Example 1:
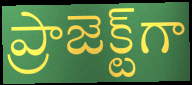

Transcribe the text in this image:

ప్రాజెక్ట్‌గా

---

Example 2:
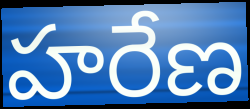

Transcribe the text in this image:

హరేణ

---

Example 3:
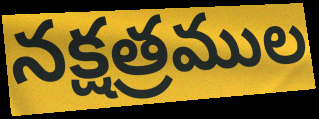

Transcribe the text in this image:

నక్షత్రముల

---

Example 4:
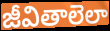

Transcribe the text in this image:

జీవితాలెలా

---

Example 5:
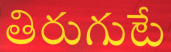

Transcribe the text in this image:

తిరుగుటే